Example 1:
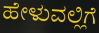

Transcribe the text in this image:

ಹೇಳುವಲ್ಲಿಗೆ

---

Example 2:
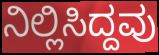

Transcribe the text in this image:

ನಿಲ್ಲಿಸಿದ್ದವು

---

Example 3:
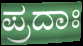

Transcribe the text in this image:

ಪ್ರದಾಃ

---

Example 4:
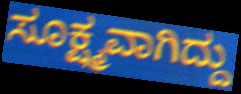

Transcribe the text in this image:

ಸೂಕ್ಷ್ಮವಾಗಿದ್ದು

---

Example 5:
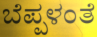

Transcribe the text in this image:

ಬೆಪ್ಪಳಂತೆ